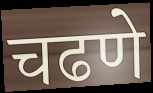
चढणे